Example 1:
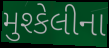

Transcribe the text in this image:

મુશ્કેલીના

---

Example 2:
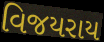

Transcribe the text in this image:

વિજયરાય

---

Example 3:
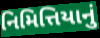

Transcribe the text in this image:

નિમિત્તિયાનું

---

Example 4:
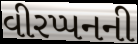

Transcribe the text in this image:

વીરપ્પનની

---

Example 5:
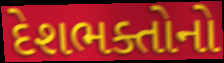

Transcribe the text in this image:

દેશભક્તોનો